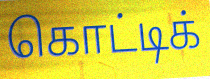
கொட்டிக்